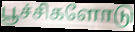
பூச்சிகளோடு